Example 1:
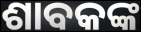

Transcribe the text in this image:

ଶାବକଙ୍କ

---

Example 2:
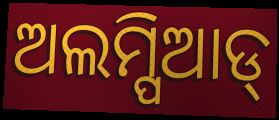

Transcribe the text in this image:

ଅଲମ୍ପିଆଡ୍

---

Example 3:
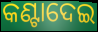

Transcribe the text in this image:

କଣ୍ଟାଦେଇ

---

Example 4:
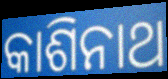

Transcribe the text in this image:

କାଶିନାଥ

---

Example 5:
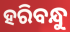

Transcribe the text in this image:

ହରିବନ୍ଧୁ